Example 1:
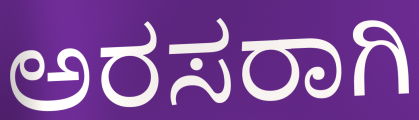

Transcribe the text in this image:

ಅರಸರಾಗಿ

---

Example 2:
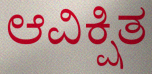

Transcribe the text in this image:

ಆವಿಕ್ಷಿತ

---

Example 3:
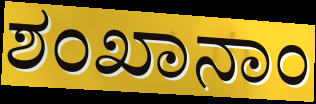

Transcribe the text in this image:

ಶಂಖಾನಾಂ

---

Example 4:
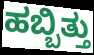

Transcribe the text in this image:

ಹಬ್ಬಿತ್ತು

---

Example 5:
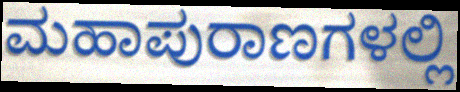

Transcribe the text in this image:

ಮಹಾಪುರಾಣಗಳಲ್ಲಿ